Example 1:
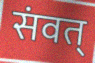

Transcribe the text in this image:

संवत्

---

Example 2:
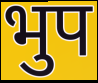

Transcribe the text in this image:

भुप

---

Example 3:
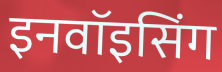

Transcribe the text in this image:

इनवॉइसिंग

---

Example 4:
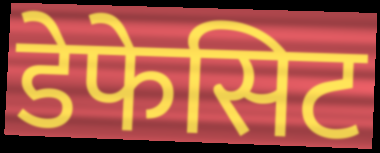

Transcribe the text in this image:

डेफेसिट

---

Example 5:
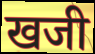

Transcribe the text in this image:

खजी